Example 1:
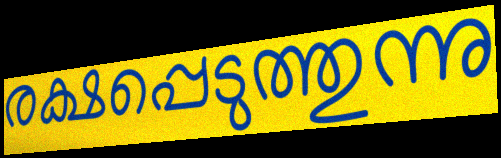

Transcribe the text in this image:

രക്ഷപ്പെടുത്തുന്നു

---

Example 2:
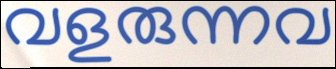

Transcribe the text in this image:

വളരുന്നവ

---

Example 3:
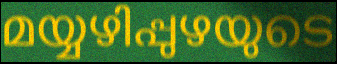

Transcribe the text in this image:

മയ്യഴിപ്പുഴയുടെ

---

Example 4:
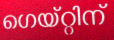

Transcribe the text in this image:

ഗെയ്റ്റിന്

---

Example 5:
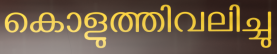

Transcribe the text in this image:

കൊളുത്തിവലിച്ചു